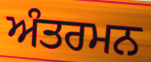
ਅੰਤਰਮਨ